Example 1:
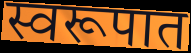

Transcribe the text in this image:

स्वरूपात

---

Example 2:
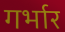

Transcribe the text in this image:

गर्भार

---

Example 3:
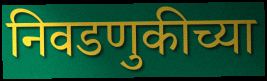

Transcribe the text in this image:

निवडणुकीच्या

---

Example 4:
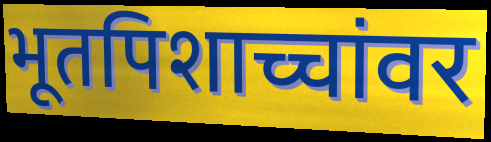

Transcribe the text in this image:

भूतपिशाच्चांवर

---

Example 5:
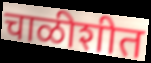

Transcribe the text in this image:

चाळीशीत